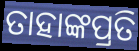
ତାହାଙ୍କପ୍ରତି